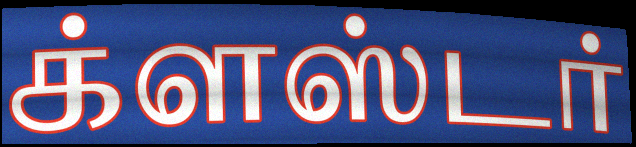
க்ளஸ்டர்